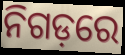
ନିଗଡ଼ରେ